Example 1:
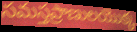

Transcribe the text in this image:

సమస్తప్రాణులయొక్క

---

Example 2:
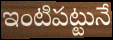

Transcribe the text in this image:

ఇంటిపట్టునే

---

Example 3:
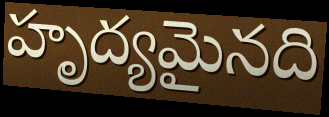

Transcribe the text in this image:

హృద్యమైనది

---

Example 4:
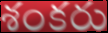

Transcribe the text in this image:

శంకరు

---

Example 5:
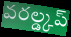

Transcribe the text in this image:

వరల్డ్కప్